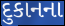
દુકાનના